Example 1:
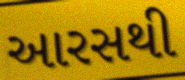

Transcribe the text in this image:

આરસથી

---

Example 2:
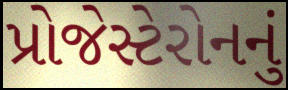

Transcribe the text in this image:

પ્રોજેસ્ટેરોનનું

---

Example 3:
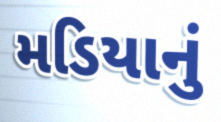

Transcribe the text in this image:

મડિયાનું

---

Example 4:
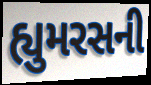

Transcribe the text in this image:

હ્યુમરસની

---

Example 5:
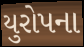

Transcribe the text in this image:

યુરોપના